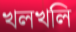
খলখলি